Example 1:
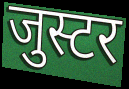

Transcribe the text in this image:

जुस्टर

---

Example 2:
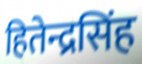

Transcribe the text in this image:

हितेन्द्रसिंह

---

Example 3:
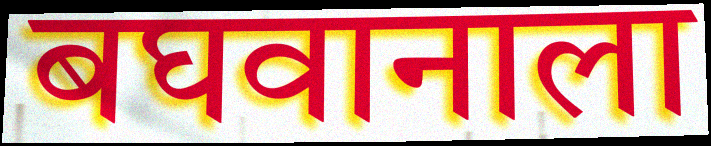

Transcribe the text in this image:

बघवानाला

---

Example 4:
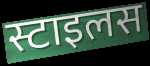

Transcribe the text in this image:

स्टाइलस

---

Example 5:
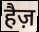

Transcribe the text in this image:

हैज़